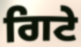
ਗਿਟੇ